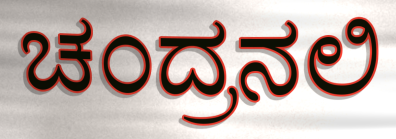
ಚಂದ್ರನಲಿ